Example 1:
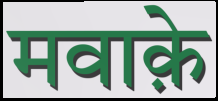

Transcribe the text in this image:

मवाक़े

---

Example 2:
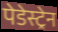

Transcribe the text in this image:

पेडेस्ट्रेन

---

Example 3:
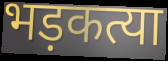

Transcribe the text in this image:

भड़कत्या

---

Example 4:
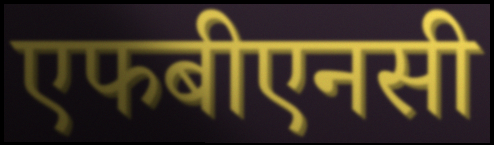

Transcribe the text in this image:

एफबीएनसी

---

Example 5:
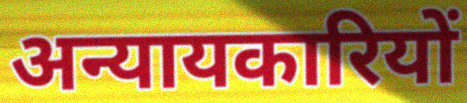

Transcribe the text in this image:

अन्यायकारियों